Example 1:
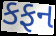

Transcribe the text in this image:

કફન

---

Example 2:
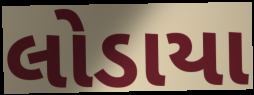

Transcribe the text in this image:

લોડાયા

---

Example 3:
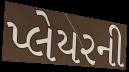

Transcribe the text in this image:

પ્લેયરની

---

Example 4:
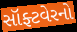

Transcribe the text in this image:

સૉફ્ટવેરનો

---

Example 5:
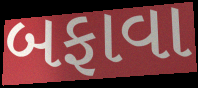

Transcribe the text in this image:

બફાવા